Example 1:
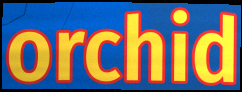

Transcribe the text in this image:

orchid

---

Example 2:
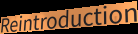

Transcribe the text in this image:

Reintroduction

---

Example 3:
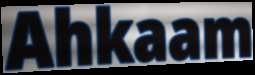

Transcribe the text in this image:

Ahkaam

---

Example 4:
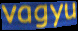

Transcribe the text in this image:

vagyu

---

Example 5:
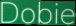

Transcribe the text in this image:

Dobie